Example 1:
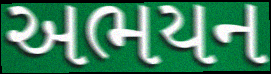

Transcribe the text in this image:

અભયન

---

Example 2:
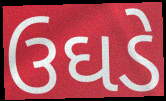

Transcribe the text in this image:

ઉઘડે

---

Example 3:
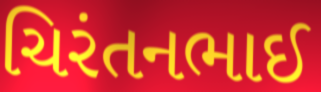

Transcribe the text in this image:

ચિરંતનભાઈ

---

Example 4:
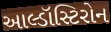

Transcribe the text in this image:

આલ્ડૉસ્ટિરોન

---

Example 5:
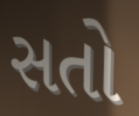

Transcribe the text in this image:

સતો